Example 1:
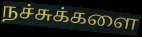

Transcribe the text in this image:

நச்சுக்களை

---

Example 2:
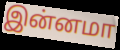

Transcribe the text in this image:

இன்னமா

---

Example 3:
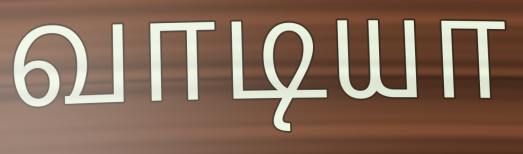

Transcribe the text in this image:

வாடியா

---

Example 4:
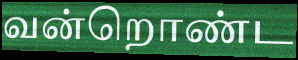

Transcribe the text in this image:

வன்றொண்ட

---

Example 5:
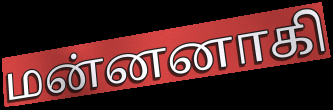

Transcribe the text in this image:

மன்னனாகி